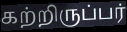
கற்றிருப்பர்